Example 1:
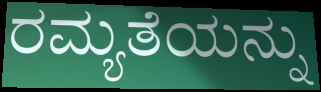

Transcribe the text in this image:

ರಮ್ಯತೆಯನ್ನು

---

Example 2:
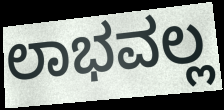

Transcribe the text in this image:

ಲಾಭವಲ್ಲ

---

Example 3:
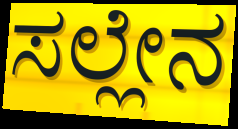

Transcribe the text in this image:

ಸಲ್ಲೇನ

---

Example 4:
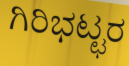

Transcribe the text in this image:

ಗಿರಿಭಟ್ಟರ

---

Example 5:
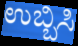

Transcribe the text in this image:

ಉಬ್ಬಿಸಿ